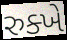
રુક્ખે